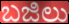
ಬಜಿಲು